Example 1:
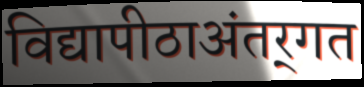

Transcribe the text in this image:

विद्यापीठाअंतर्गत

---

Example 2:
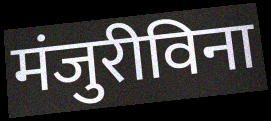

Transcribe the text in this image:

मंजुरीविना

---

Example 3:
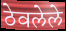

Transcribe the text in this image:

ठेवलेले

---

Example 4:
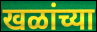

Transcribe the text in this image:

खळांच्या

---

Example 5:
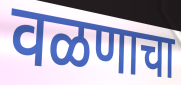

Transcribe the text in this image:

वळणाचा